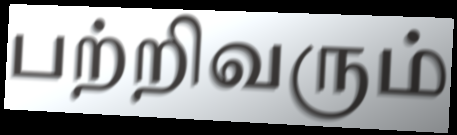
பற்றிவரும்